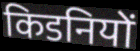
किडनियों